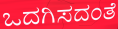
ಒದಗಿಸದಂತೆ